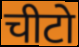
चीटो